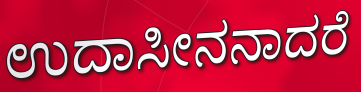
ಉದಾಸೀನನಾದರೆ